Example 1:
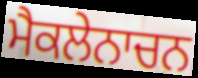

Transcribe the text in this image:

ਮੈਕਲੇਨਾਚਨ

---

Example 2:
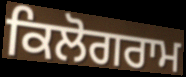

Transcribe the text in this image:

ਕਿਲੋਗਰਾਮ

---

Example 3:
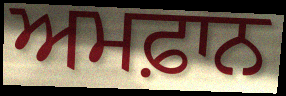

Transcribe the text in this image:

ਅਮਫ਼ਾਨ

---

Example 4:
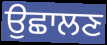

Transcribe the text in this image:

ਉਛਾਲਣ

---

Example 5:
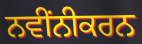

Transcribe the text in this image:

ਨਵੀਂਨੀਕਰਨ